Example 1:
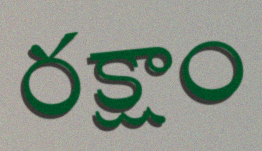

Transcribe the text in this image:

రక్షాం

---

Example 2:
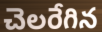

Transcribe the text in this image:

చెలరేగిన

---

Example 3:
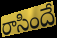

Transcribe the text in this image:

రాసిందే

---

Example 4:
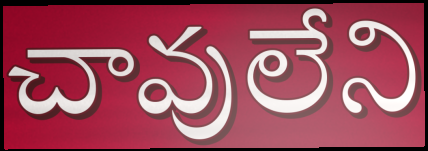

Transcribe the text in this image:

చావులేని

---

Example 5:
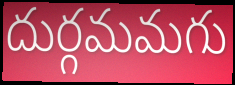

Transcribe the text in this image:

దుర్గమమగు